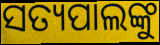
ସତ୍ୟପାଲଙ୍କୁ